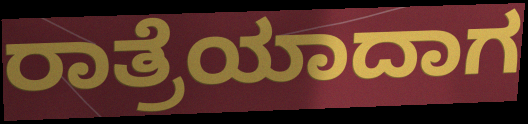
ರಾತ್ರೆಯಾದಾಗ